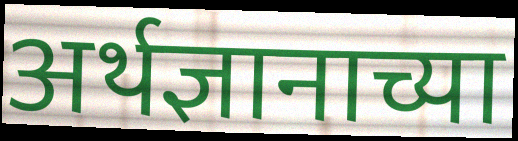
अर्थज्ञानाच्या